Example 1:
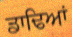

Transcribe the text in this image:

ਡਾਢਿਆਂ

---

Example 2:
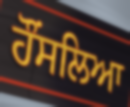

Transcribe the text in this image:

ਹੌਂਸਲਿਆ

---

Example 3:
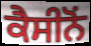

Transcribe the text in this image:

ਕੈਸੀਨੋਂ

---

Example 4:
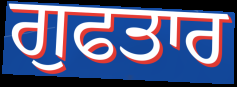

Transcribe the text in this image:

ਗੁਫਤਾਰ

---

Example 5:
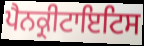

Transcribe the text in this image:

ਪੈਨਕ੍ਰੀਟਾਇਟਿਸ